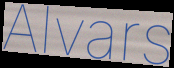
Alvars